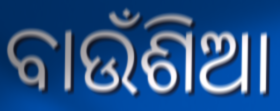
ବାଉଁଶିଆ